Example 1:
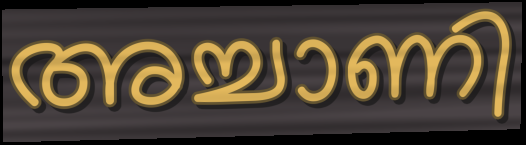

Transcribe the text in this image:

അച്ചാണി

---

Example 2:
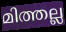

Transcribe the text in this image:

മിത്തല്ല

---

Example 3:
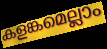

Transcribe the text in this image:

കളങ്കമെല്ലാം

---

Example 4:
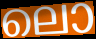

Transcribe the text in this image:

ലൊ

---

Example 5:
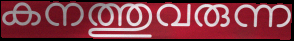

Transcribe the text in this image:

കനത്തുവരുന്ന